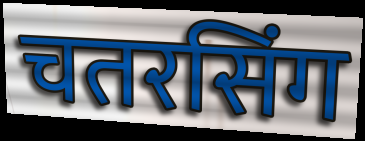
चतरसिंग